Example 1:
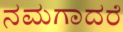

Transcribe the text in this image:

ನಮಗಾದರೆ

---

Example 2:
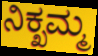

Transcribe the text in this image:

ನಿಕ್ಖಮ್ಮ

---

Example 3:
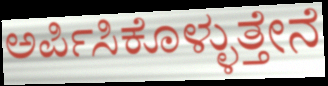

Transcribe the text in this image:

ಅರ್ಪಿಸಿಕೊಳ್ಳುತ್ತೇನೆ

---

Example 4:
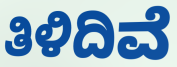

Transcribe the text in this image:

ತಿಳಿದಿವೆ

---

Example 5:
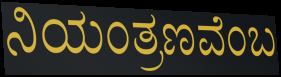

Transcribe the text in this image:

ನಿಯಂತ್ರಣವೆಂಬ